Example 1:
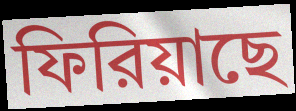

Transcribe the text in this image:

ফিরিয়াছে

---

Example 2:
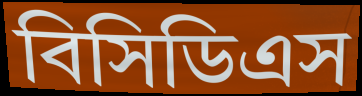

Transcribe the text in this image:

বিসিডিএস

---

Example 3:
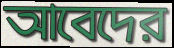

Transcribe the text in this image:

আবেদের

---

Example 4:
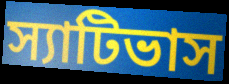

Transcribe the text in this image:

স্যাটিভাস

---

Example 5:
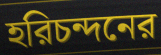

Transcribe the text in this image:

হরিচন্দনের